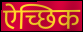
ऐच्छिक